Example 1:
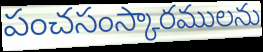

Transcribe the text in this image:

పంచసంస్కారములను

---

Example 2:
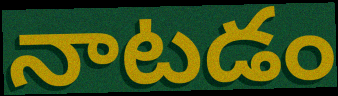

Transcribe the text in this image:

నాటడం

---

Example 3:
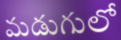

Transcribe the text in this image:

మడుగులో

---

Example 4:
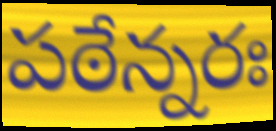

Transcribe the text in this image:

పఠేన్నరః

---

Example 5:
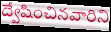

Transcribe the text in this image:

ద్వేషించినవారిని